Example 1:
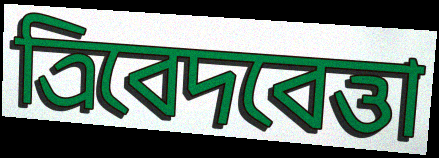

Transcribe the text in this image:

ত্রিবেদবেত্তা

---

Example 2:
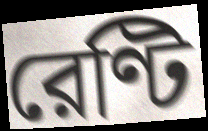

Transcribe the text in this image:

রেণ্টি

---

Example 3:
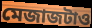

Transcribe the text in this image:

মেজাজটাও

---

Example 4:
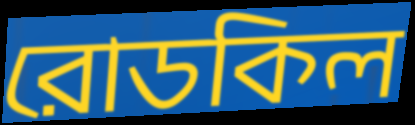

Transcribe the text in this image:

রোডকিল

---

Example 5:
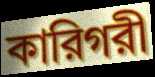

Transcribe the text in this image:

কারিগরী